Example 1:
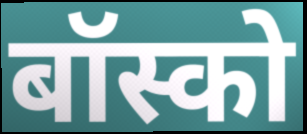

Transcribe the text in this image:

बॉस्को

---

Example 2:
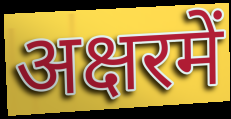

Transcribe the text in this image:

अक्षरमें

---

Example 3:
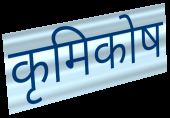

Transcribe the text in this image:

कृमिकोष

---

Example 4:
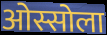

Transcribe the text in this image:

ओस्सोला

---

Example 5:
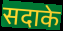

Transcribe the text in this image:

सदाके